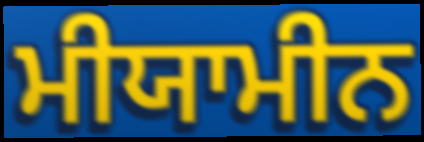
ਮੀਯਾਮੀਨ